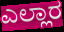
ಎಲ್ಲಾರ